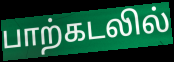
பாற்கடலில்